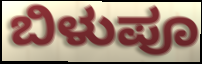
ಬಿಳುಪೂ